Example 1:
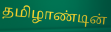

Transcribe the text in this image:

தமிழாண்டின்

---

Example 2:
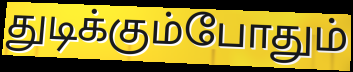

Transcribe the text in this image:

துடிக்கும்போதும்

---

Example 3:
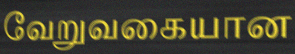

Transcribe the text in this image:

வேறுவகையான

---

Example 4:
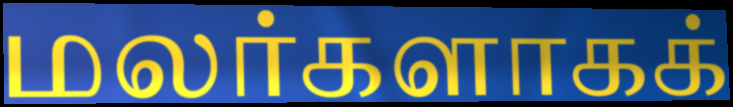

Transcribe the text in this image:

மலர்களாகக்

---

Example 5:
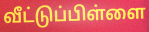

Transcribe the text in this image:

வீட்டுப்பிள்ளை